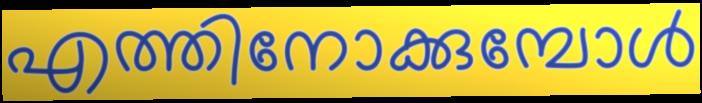
എത്തിനോക്കുമ്പോൾ